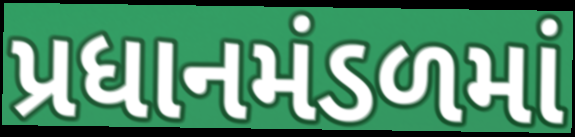
પ્રધાનમંડળમાં